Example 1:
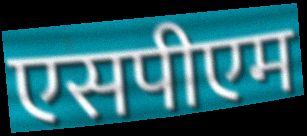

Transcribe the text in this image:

एसपीएम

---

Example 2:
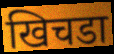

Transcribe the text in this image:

खिचडा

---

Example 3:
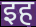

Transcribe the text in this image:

इह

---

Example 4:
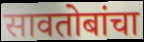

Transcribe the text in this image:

सावतोबांचा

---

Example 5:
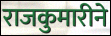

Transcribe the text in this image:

राजकुमारीने